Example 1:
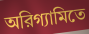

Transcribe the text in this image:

অরিগ্যামিতে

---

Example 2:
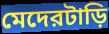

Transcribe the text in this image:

মেদেরটাড়ি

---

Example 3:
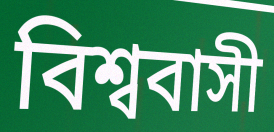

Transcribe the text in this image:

বিশ্ববাসী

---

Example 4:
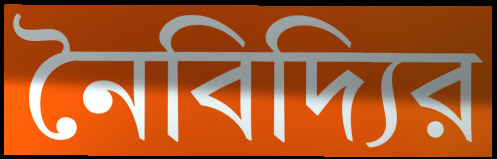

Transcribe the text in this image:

নৈবিদ্যির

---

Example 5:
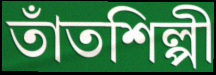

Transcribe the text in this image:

তাঁতশিল্পী